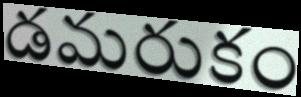
డమరుకం